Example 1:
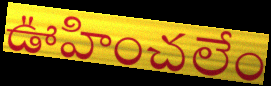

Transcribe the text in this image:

ఊహించలేం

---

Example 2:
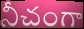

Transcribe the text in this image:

నీచంగా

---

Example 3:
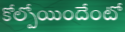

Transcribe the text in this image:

కోల్పోయిందేంటో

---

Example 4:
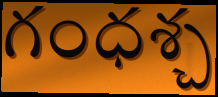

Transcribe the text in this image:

గంధశ్చ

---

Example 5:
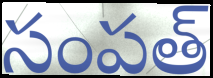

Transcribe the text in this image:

సంపత్